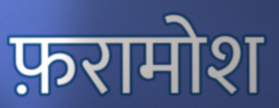
फ़रामोश